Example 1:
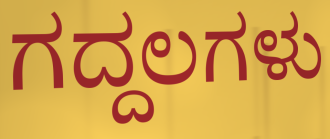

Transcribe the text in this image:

ಗದ್ದಲಗಳು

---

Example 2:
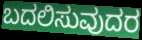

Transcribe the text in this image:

ಬದಲಿಸುವುದರ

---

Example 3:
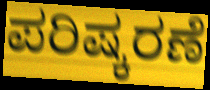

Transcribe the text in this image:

ಪರಿಷ್ಕರಣೆ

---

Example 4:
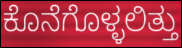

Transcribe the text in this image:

ಕೊನೆಗೊಳ್ಳಲಿತ್ತು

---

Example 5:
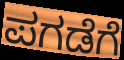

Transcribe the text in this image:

ಪಗಡೆಗೆ